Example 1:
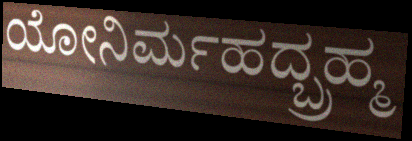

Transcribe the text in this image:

ಯೋನಿರ್ಮಹದ್ಬ್ರಹ್ಮ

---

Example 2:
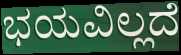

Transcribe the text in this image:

ಭಯವಿಲ್ಲದೆ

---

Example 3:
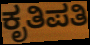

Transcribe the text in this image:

ಕೃತಿಪತಿ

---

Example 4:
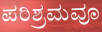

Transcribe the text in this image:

ಪರಿಶ್ರಮವೂ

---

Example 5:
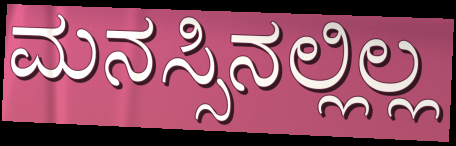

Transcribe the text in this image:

ಮನಸ್ಸಿನಲ್ಲಿಲ್ಲ